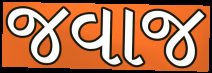
જવાજ